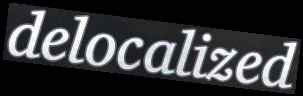
delocalized